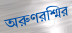
অরুণরশ্মির